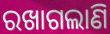
ରଖାଗଲାଣି